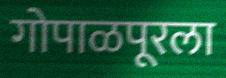
गोपाळपूरला